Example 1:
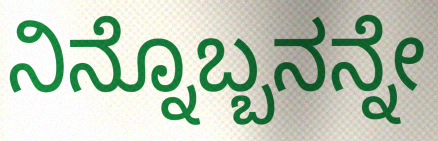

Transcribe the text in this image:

ನಿನ್ನೊಬ್ಬನನ್ನೇ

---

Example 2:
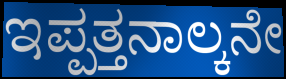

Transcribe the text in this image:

ಇಪ್ಪತ್ತನಾಲ್ಕನೇ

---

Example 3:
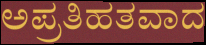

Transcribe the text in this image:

ಅಪ್ರತಿಹತವಾದ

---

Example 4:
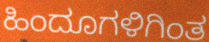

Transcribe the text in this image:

ಹಿಂದೂಗಳಿಗಿಂತ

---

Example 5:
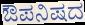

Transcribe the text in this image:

ಔಪನಿಷದ